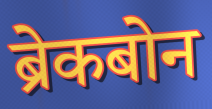
ब्रेकबोन